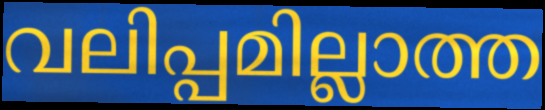
വലിപ്പമില്ലാത്ത